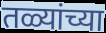
तळ्यांच्या